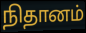
நிதானம்